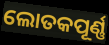
ଲୋତକପୂର୍ଣ୍ଣ